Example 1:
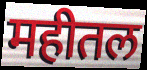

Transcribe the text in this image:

महीतल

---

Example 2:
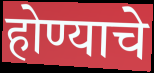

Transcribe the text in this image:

होण्याचे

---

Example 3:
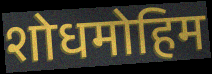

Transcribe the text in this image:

शोधमोहिम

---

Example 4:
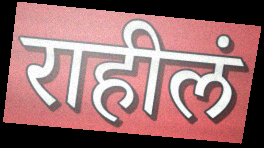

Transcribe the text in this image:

राहीलं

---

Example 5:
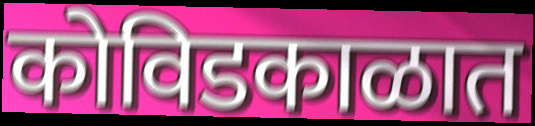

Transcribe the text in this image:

कोविडकाळात